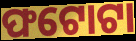
ଫଟୋଟା